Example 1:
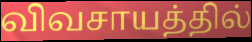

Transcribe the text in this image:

விவசாயத்தில்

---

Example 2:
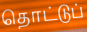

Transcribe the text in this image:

தொட்டுப்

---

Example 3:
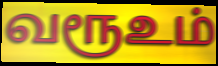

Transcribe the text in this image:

வரூஉம்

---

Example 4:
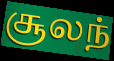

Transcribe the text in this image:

சூலந்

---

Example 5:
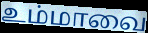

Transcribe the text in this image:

உம்மாவை